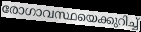
രോഗാവസ്ഥയെക്കുറിച്ച്